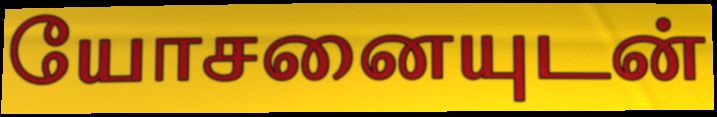
யோசனையுடன்